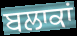
ਬਲਾਕਾਂ